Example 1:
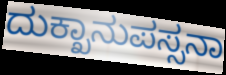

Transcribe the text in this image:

ದುಕ್ಖಾನುಪಸ್ಸನಾ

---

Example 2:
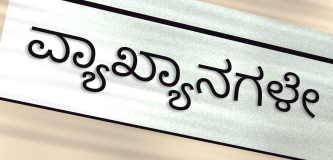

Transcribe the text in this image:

ವ್ಯಾಖ್ಯಾನಗಳೇ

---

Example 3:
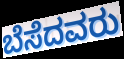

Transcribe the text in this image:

ಬೆಸೆದವರು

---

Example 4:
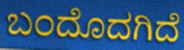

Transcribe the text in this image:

ಬಂದೊದಗಿದೆ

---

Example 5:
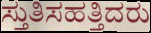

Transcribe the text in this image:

ಸ್ತುತಿಸಹತ್ತಿದರು